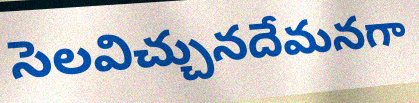
సెలవిచ్చునదేమనగా